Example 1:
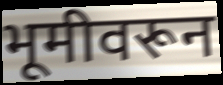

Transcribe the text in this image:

भूमीवरून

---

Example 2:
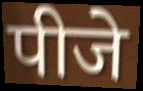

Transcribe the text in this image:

पीजे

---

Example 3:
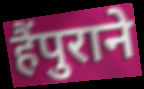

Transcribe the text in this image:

हैंपुराने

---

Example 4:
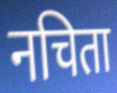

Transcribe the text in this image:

नचिता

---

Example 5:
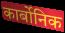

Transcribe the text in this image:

कार्बोनिक